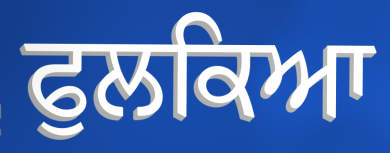
ਫੁਲਕਿਆ